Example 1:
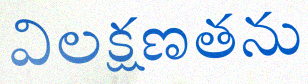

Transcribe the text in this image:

విలక్షణతను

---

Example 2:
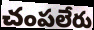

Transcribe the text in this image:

చంపలేరు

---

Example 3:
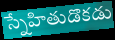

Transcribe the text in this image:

స్నేహితుడొకడు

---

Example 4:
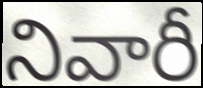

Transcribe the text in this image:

నివారీ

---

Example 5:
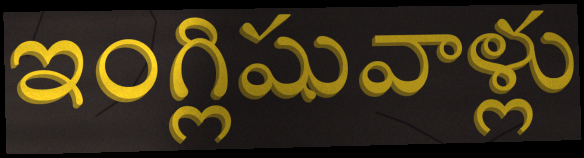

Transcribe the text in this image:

ఇంగ్లిషువాళ్లు